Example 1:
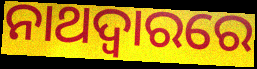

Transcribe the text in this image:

ନାଥଦ୍ୱାରରେ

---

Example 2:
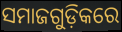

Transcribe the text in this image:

ସମାଜଗୁଡ଼ିକରେ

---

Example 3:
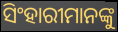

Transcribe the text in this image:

ସିଂହାରୀମାନଙ୍କୁ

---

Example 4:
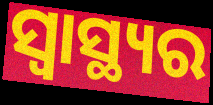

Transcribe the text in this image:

ସ୍ବାସ୍ଥ୍ୟର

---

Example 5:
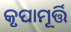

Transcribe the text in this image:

କୃପାମୂର୍ତ୍ତି